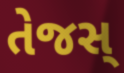
તેજસ્